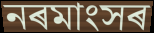
নৰমাংসৰ